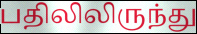
பதிலிலிருந்து